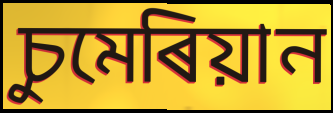
চুমেৰিয়ান